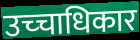
उच्‍चाधिकार